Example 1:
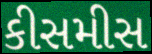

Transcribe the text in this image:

કીસમીસ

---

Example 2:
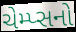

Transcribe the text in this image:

ચેમ્પ્સનો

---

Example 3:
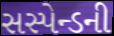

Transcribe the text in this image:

સસ્પેન્ડની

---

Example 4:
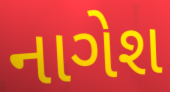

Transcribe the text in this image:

નાગેશ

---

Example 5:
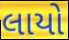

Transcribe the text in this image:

લાયો